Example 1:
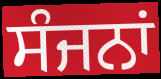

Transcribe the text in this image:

ਸੰਜਨਾਂ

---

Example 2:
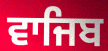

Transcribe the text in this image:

ਵਾਜਿਬ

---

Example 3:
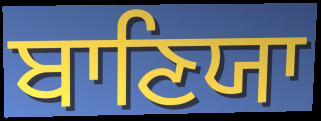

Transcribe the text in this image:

ਬਾਣਿਯਾ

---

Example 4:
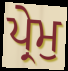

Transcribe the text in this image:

ਪ੍ਰੇਮੁ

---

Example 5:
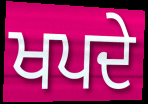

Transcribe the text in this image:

ਖਪਦੇ